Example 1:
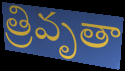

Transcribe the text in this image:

త్రివృతా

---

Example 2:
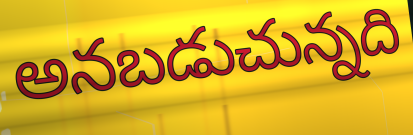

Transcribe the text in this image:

అనబడుచున్నది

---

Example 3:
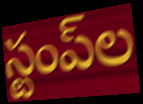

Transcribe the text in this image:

స్టంప్‌ల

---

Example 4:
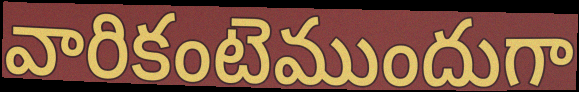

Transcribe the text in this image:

వారికంటెముందుగా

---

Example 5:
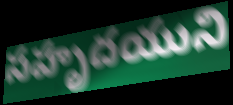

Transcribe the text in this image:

సహృదయుని